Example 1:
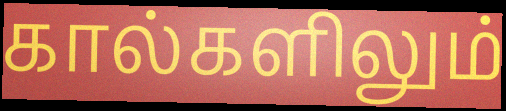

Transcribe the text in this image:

கால்களிலும்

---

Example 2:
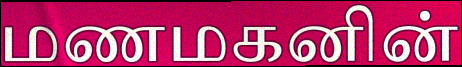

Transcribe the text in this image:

மணமகனின்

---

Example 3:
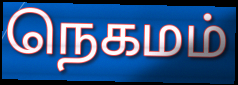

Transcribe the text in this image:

நெகமம்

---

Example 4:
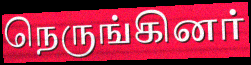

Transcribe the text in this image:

நெருங்கினர்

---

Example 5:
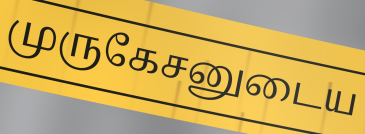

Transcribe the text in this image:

முருகேசனுடைய